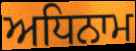
ਅਧਿਨਾਮ